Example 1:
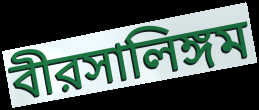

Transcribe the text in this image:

বীরসালিঙ্গম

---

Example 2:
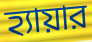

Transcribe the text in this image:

হ্যায়ার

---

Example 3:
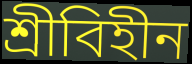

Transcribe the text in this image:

শ্রীবিহীন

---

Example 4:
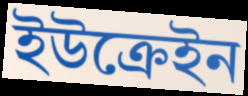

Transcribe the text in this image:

ইউক্রেইন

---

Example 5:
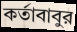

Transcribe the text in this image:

কর্তাবাবুর